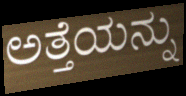
ಅತ್ತೆಯನ್ನು